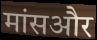
मांसऔर